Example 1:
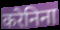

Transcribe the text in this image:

करेनिना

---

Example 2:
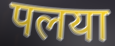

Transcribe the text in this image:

पलया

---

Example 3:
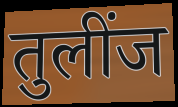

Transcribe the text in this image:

तुलींज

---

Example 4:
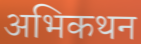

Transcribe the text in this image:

अभिकथन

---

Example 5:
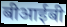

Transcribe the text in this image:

बीआईबी